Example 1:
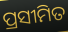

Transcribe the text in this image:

ପ୍ରସୀମିତ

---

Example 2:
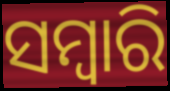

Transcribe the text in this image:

ସମ୍ବାରି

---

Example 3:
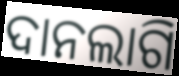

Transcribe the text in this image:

ଦାନଲାଗି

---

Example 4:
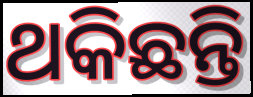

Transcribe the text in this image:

ଥକିଛନ୍ତି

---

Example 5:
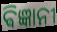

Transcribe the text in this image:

ଵିଜ୍ଞାନୀ